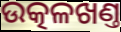
ଉତ୍କଳଖଣ୍ତ